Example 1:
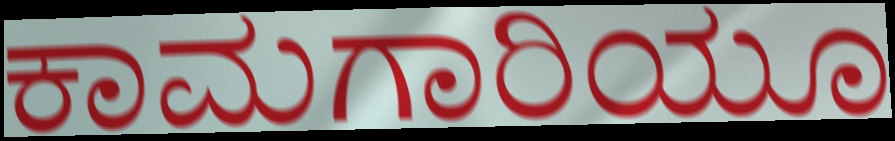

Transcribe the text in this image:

ಕಾಮಗಾರಿಯೂ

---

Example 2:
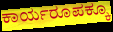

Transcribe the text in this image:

ಕಾರ್ಯರೂಪಕ್ಕೂ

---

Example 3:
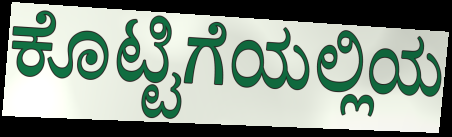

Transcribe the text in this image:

ಕೊಟ್ಟಿಗೆಯಲ್ಲಿಯ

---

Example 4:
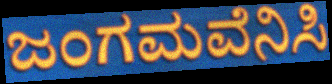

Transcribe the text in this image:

ಜಂಗಮವೆನಿಸಿ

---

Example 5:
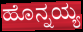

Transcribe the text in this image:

ಹೊನ್ನಯ್ಯ